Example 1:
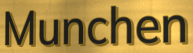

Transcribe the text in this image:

Munchen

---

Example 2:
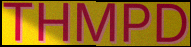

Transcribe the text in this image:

THMPD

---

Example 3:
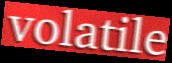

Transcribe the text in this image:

volatile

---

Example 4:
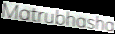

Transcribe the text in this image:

Matrubhasha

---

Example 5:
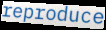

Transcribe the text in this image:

reproduce